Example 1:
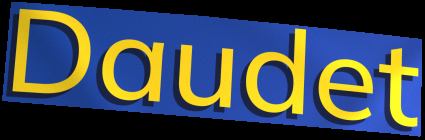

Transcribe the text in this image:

Daudet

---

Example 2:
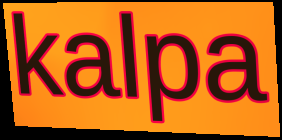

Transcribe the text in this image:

kalpa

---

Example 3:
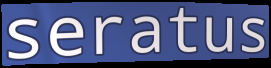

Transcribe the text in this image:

seratus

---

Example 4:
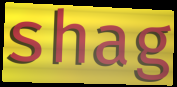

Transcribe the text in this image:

shag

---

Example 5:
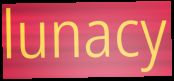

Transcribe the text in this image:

lunacy